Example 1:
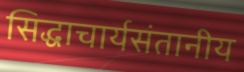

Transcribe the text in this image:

सिद्धाचार्यसंतानीय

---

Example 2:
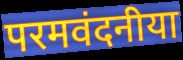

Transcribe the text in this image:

परमवंदनीया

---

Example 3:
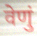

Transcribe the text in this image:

वेणुं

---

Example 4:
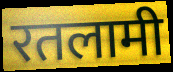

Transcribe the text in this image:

रतलामी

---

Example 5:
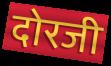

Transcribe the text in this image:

दोरजी